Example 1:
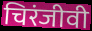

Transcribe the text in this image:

चिरंजीवी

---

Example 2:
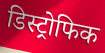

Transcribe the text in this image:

डिस्ट्रोफिक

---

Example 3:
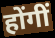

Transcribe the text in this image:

होंगीं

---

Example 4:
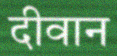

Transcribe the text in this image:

दीवान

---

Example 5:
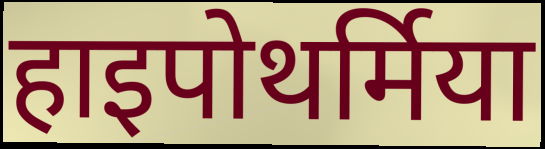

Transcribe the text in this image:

हाइपोथर्मिया